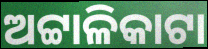
ଅଟ୍ଟାଳିକାଟା